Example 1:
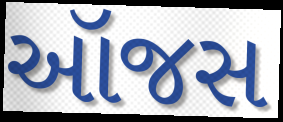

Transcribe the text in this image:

ઑજસ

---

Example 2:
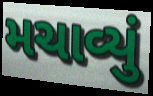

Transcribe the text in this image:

મચાવ્યું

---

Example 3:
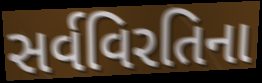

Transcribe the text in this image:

સર્વવિરતિના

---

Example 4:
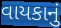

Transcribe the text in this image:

વાયકાનું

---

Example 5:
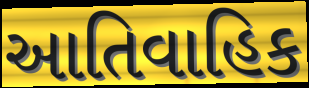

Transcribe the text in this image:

આતિવાહિક